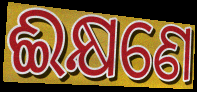
ଈକ୍ଷଣେ